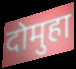
दोमुहा